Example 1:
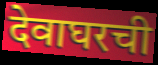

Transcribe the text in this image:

देवाघरची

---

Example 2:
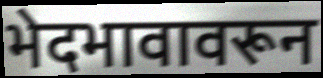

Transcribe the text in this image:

भेदभावावरून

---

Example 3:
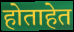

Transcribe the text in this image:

होताहेत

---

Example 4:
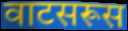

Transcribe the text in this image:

वाटसरूस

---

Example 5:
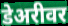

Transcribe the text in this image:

डेअरीवर